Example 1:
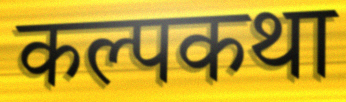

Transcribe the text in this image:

कल्पकथा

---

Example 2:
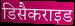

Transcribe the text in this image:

डिसैकराइड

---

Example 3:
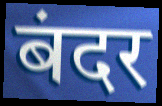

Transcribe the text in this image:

बंदर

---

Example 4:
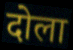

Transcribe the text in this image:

दोला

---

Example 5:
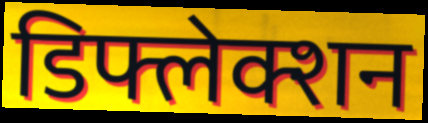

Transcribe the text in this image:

डिफ्लेक्शन